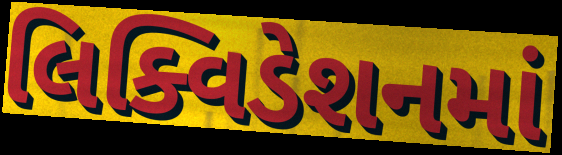
લિક્વિડેશનમાં